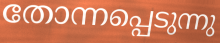
തോന്നപ്പെടുന്നു